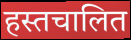
हस्तचालित